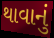
થાવાનું